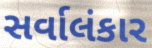
સર્વાલંકાર